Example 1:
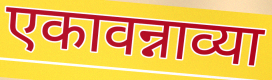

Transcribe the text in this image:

एकावन्नाव्या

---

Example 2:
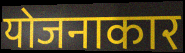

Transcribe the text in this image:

योजनाकार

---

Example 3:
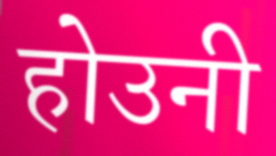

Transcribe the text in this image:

होउनी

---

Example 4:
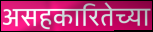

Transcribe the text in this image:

असहकारितेच्या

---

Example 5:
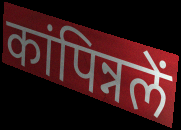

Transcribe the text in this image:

कांपिन्नलें